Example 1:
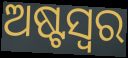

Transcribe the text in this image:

ଅଷ୍ଟସ୍ୱର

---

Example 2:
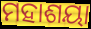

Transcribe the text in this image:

ମହାଶୟା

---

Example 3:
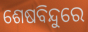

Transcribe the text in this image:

ଶେଷବିନ୍ଦୁରେ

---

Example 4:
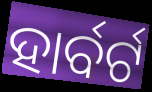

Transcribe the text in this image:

ହାର୍ବର୍ଟ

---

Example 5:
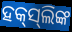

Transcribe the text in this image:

ହକ୍‌ସ୍‌ଲିଙ୍କ